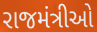
રાજમંત્રીઓ